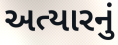
અત્યારનું